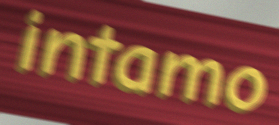
intamo